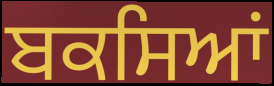
ਬਕਸਿਆਂ